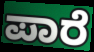
ಪಾರೆ